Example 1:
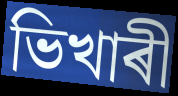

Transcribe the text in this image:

ভিখাৰী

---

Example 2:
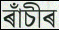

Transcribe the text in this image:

ৰাঁচীৰ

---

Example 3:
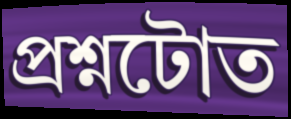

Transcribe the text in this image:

প্ৰশ্নটোত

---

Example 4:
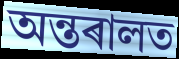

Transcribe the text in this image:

অন্তৰালত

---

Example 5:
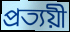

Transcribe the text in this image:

প্ৰত্যয়ী